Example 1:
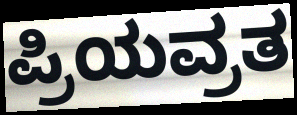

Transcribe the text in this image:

ಪ್ರಿಯವ್ರತ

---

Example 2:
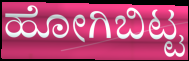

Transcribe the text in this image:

ಹೋಗಿಬಿಟ್ಟ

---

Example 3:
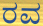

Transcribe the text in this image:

ರವ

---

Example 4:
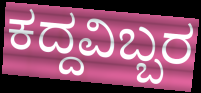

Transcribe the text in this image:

ಕದ್ದವಿಬ್ಬರ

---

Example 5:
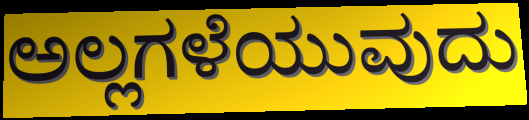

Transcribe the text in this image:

ಅಲ್ಲಗಳೆಯುವುದು